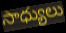
సాధ్యులు